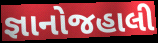
જ્ઞાનોજહાલી